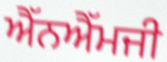
ਐੱਨਐੱਮਜੀ